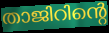
താജിറിന്റെ